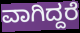
ವಾಗಿದ್ದರೆ